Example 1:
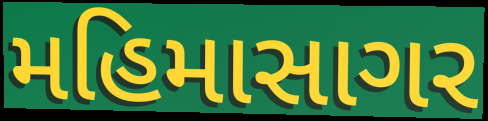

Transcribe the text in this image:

મહિમાસાગર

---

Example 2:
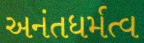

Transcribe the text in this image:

અનંતધર્મત્વ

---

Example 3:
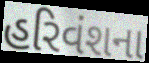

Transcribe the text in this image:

હરિવંશના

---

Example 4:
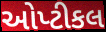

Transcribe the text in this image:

ઓપ્ટીકલ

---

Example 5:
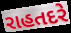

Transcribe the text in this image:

રાહતદરે